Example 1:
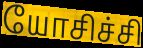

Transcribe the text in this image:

யோசிச்சி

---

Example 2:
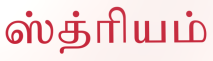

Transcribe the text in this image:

ஸ்த்ரியம்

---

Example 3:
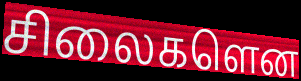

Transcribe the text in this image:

சிலைகளென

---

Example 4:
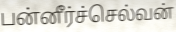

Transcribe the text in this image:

பன்னீர்ச்செல்வன்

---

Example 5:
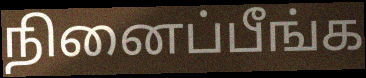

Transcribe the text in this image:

நினைப்பீங்க